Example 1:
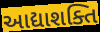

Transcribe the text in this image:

આદ્યાશક્તિ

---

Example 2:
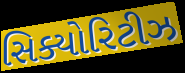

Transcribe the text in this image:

સિક્યોરિટીઝ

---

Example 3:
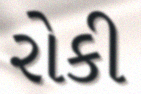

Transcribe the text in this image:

રોકી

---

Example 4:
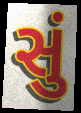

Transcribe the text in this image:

સું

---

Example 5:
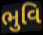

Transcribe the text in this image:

ભુવિ